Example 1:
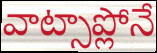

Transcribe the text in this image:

వాట్సాప్లోనే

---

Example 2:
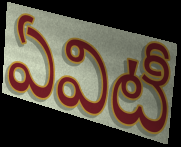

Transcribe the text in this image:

ఏవిటీ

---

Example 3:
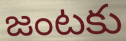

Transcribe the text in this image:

జంటకు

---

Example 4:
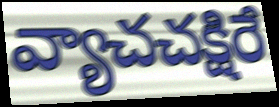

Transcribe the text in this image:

వ్యాచచక్షిరే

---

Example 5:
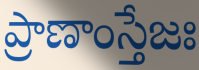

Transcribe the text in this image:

ప్రాణాంస్తేజః